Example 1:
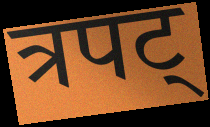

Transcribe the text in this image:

त्रपट्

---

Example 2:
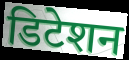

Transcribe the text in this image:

डिटेशन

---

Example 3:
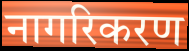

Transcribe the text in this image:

नागरिकरण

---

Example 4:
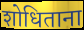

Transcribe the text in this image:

शोधिताना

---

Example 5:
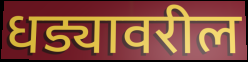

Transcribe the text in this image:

धड्यावरील